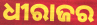
ଧୀରାଜର